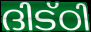
ദിട്ഠി